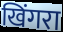
खिंगरा